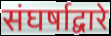
संघर्षाद्वारे